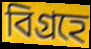
বিগ্রহে